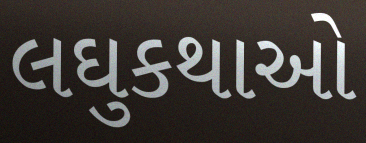
લઘુકથાઓ